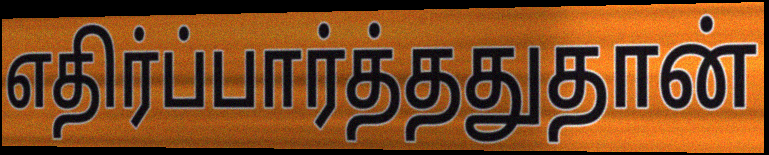
எதிர்ப்பார்த்ததுதான்